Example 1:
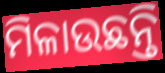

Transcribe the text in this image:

ମିଳାଉଛନ୍ତି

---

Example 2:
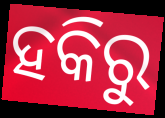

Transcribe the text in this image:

ହକିରୁ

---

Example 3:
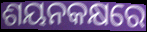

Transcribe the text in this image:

ଶୟନକକ୍ଷରେ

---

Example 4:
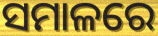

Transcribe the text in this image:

ସମାଳରେ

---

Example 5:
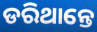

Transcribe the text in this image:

ଡରିଥାନ୍ତେ